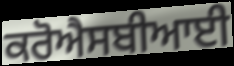
ਕਰੋਐਸਬੀਆਈ